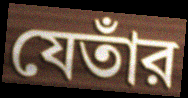
যেতাঁর